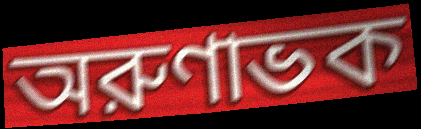
অৰুণাভক